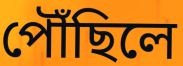
পৌঁছিলে